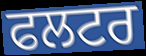
ਫਲਟਰ